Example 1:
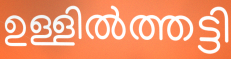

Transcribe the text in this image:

ഉള്ളിൽത്തട്ടി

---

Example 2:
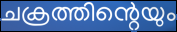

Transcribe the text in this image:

ചക്രത്തിന്റെയും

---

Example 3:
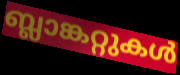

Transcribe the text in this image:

ബ്ലാങ്കറ്റുകൾ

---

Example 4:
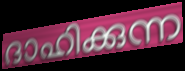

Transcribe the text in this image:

ദാഹിക്കുന്ന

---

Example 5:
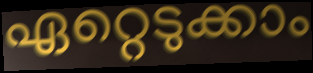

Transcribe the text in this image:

ഏറ്റെടുക്കാം